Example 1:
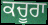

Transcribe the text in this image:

ਕਚੂਰਾ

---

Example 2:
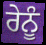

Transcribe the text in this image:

ਰੇਨੂੰ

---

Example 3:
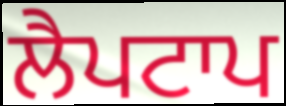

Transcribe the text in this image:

ਲੈਪਟਾਪ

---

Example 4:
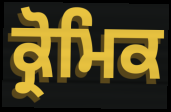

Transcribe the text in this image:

ਕ੍ਰੋਮਿਕ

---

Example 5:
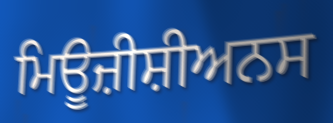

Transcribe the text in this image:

ਮਿਊਜ਼ੀਸ਼ੀਅਨਸ